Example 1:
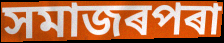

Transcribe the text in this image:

সমাজৰপৰা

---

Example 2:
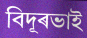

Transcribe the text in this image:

বিদূৰভাই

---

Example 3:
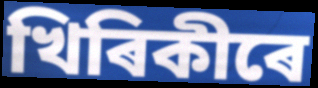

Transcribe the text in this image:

খিৰিকীৰে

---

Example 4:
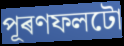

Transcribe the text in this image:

পূৰণফলটো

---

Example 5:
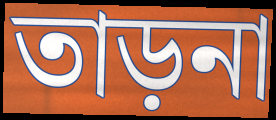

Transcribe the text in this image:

তাড়না